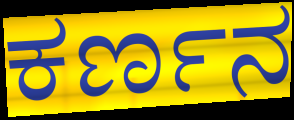
ಕರ್ಣನ